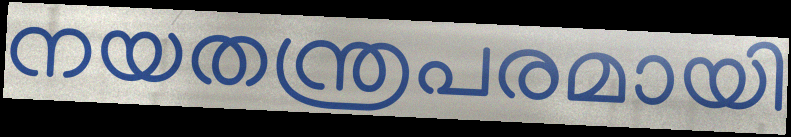
നയതന്ത്രപരമായി